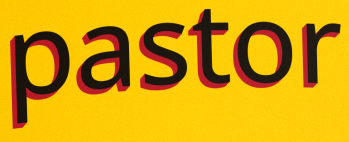
pastor